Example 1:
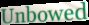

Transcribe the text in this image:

Unbowed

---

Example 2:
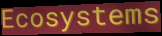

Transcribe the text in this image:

Ecosystems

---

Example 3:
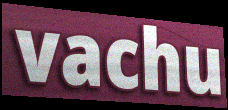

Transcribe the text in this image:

vachu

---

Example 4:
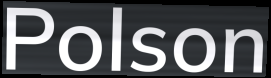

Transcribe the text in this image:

Polson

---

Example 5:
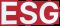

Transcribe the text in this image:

ESG